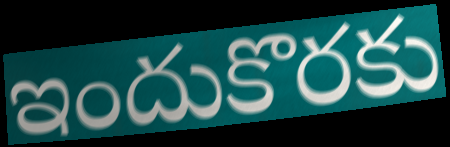
ఇందుకొరకు